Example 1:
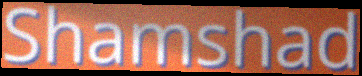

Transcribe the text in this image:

Shamshad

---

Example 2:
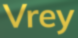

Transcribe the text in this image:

Vrey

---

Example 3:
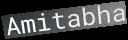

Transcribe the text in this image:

Amitabha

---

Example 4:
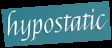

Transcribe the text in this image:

hypostatic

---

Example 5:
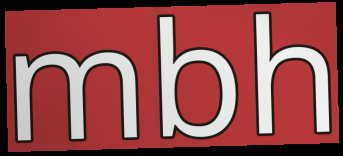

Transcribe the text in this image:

mbh